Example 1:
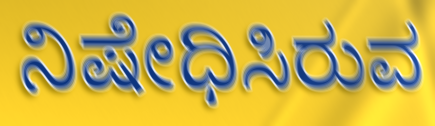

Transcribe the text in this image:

ನಿಷೇಧಿಸಿರುವ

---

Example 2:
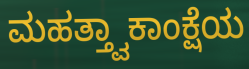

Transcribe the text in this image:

ಮಹತ್ತ್ವಾಕಾಂಕ್ಷೆಯ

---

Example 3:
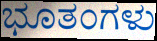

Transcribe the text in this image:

ಭೂತಂಗಳು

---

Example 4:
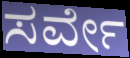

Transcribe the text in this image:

ಸರ್ವೇ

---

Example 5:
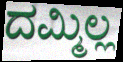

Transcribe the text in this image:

ದಮ್ಮಿಲ್ಲ